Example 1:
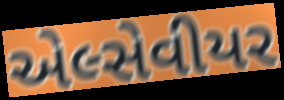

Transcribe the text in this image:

એલ્સેવીયર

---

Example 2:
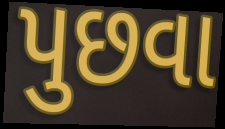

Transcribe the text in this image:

પુછવા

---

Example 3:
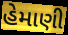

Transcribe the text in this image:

હેમાણી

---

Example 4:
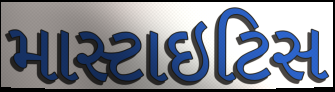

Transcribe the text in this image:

માસ્ટાઇટિસ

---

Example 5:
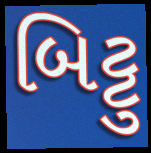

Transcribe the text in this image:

બિટ્ટુ